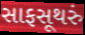
સાફસૂથરું